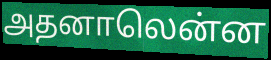
அதனாலென்ன